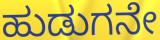
ಹುಡುಗನೇ